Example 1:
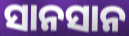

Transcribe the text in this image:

ସାନସାନ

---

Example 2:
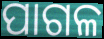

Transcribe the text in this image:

ପାଗଳ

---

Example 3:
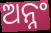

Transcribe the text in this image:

ଅନ୍ନଂ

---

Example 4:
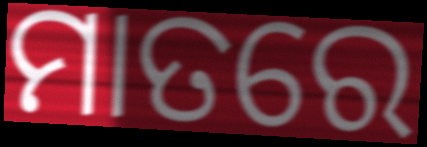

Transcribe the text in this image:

ମାତରେ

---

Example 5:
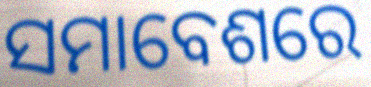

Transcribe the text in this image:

ସମାବେଶରେ